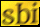
sbi